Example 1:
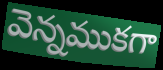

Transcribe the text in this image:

వెన్నముకగా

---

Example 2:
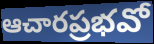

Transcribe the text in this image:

ఆచారప్రభవో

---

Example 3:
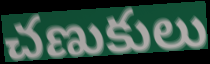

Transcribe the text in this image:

చణుకులు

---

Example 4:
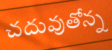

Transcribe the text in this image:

చదువుతోన్న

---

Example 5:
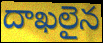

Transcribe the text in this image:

దాఖలైన